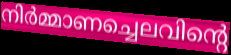
നിർമ്മാണച്ചെലവിന്റെ